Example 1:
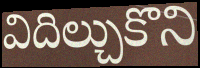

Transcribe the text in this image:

విదిల్చుకొని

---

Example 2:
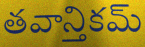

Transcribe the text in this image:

తవాన్తికమ్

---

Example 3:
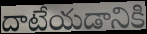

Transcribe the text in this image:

దాటేయడానికి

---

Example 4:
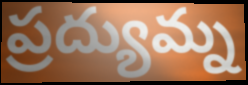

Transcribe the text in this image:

ప్రద్యుమ్న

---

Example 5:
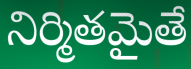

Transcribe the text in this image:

నిర్మితమైతే